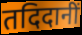
तदिदानीं